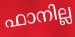
ഫാനില്ല